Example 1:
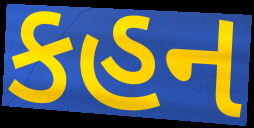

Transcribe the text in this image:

કહન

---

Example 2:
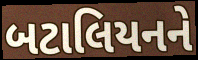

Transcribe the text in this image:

બટાલિયનને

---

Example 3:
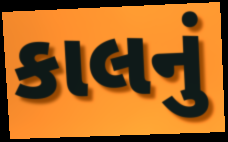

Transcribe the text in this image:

કાલનું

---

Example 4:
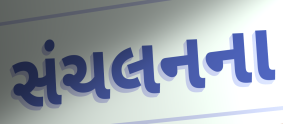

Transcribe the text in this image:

સંચલનના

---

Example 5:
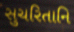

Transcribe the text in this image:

સુચરિતાનિ